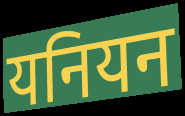
यनियन